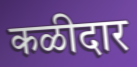
कळीदार